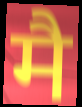
मै